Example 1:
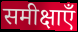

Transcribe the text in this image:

समीक्षाएँ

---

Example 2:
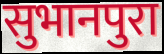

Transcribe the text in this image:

सुभानपुरा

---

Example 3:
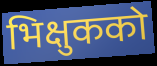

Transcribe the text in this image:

भिक्षुकको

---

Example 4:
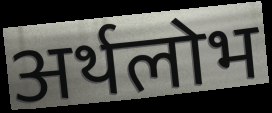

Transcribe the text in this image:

अर्थलोभ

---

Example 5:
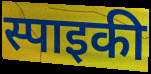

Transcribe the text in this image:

स्पाइकी